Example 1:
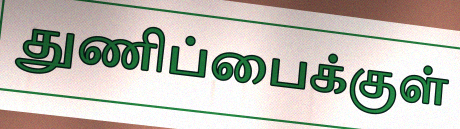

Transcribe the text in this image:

துணிப்பைக்குள்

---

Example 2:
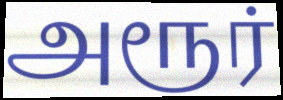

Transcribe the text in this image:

அரூர்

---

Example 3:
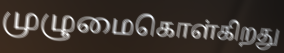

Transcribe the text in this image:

முழுமைகொள்கிறது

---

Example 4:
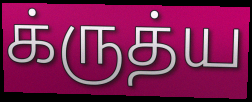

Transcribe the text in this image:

க்ருத்ய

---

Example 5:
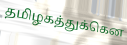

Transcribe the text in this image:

தமிழகத்துக்கென